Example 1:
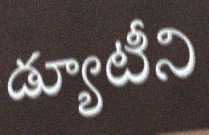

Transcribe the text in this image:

డ్యూటీని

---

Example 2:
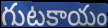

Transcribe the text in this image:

గుటకాయం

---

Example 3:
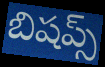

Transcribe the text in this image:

బిషప్స్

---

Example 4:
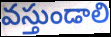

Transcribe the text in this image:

వస్తుండాలి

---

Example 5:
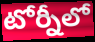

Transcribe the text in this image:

టోర్నీలో